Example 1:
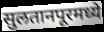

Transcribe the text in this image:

सुलतानपूरमध्ये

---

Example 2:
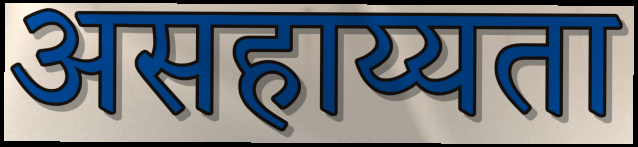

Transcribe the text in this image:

असहाय्यता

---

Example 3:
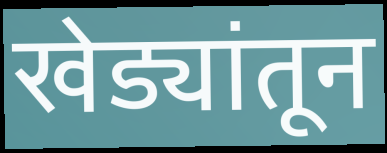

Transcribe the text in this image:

खेड्यांतून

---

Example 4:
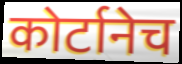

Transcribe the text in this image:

कोर्टानेच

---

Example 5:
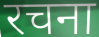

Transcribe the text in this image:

रचना